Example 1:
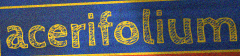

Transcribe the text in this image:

acerifolium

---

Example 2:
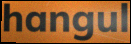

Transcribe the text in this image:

hangul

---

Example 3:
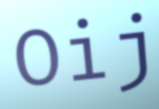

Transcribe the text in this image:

Oij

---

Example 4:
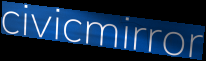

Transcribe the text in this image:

civicmirror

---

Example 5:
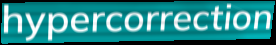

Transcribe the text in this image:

hypercorrection